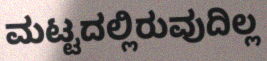
ಮಟ್ಟದಲ್ಲಿರುವುದಿಲ್ಲ